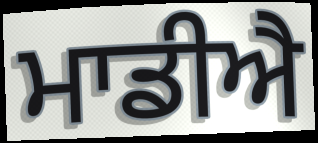
ਮਾਡੀਐ